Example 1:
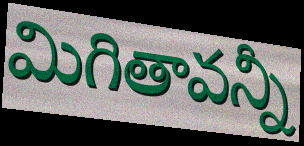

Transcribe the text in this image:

మిగితావన్నీ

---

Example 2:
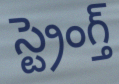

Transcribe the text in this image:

స్ట్రెంగ్త్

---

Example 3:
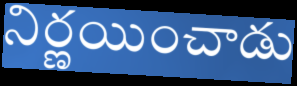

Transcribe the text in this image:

నిర్ణయించాడు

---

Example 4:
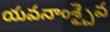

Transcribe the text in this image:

యవనాంశ్చైవ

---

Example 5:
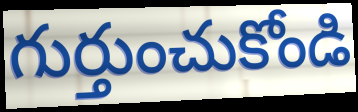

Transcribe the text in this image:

గుర్తుంచుకోండి